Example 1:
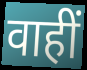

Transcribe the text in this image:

वाहीं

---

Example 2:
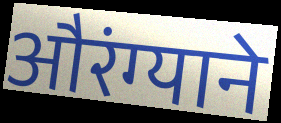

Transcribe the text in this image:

औरंग्याने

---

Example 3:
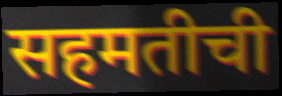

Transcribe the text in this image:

सहमतीची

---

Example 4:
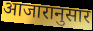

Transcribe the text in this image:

आजारानुसार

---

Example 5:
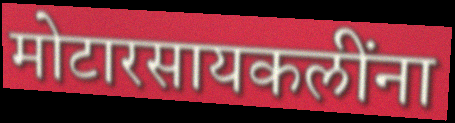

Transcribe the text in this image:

मोटारसायकलींना